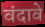
वंदावे